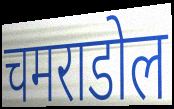
चमराडोल